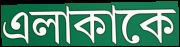
এলাকাকে